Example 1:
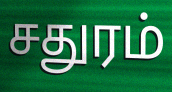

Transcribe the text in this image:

சதுரம்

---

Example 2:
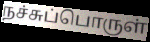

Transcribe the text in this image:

நச்சுப்பொருள்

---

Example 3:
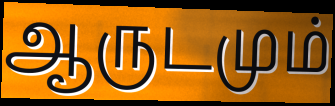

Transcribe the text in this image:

ஆருடமும்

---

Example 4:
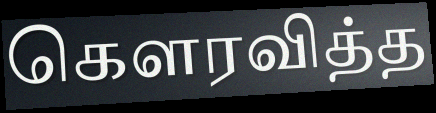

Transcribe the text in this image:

கெளரவித்த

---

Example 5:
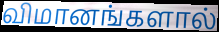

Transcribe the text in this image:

விமானங்களால்